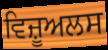
ਵਿਜ਼ੂਅਲਸ